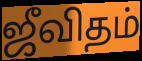
ஜீவிதம்